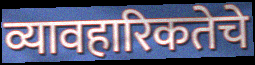
व्यावहारिकतेचे